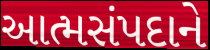
આત્મસંપદાને